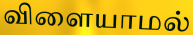
விளையாமல்